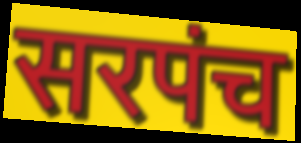
सरपंच